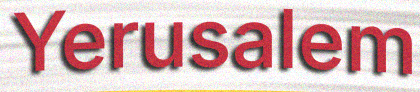
Yerusalem